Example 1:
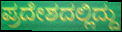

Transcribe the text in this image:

ಪ್ರದೇಶದಲ್ಲಿದ್ದು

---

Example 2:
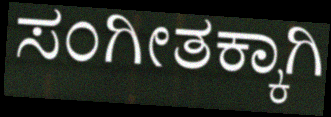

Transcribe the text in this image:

ಸಂಗೀತಕ್ಕಾಗಿ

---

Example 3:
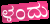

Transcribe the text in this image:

ಳಂದು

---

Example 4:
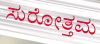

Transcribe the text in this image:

ಸುರೋತ್ತಮ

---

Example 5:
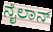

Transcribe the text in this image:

ನೈಲಾನ್